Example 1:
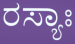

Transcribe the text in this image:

ರಸ್ಯಾಃ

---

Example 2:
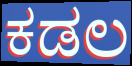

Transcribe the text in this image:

ಕಡಲ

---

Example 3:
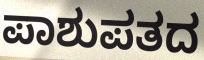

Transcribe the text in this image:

ಪಾಶುಪತದ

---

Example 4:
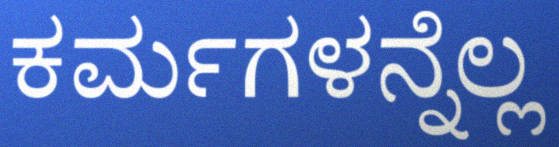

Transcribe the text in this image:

ಕರ್ಮಗಳನ್ನೆಲ್ಲ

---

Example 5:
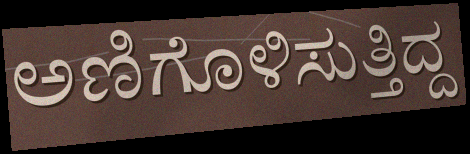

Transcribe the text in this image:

ಅಣಿಗೊಳಿಸುತ್ತಿದ್ದ